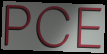
PCE